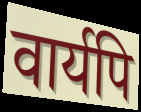
वार्यपि